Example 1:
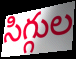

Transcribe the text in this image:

సిగ్గుల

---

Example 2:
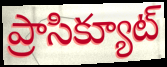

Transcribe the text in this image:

ప్రాసిక్యూట్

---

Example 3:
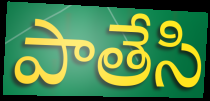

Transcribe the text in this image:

పాతేసి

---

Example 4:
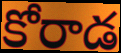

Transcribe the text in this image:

కోరాడ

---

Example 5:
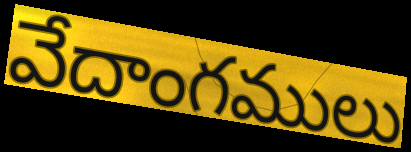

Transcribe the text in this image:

వేదాంగములు